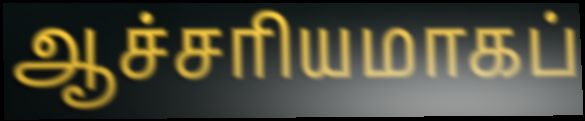
ஆச்சரியமாகப்